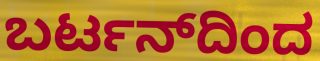
ಬರ್ಟನ್‌ದಿಂದ